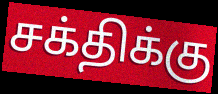
சக்திக்கு